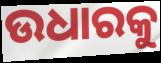
ଉଧାରକୁ